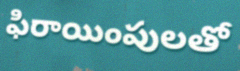
ఫిరాయింపులతో